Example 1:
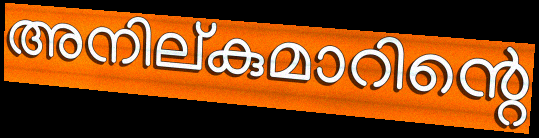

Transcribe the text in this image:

അനില്കുമാറിന്റെ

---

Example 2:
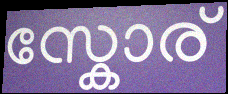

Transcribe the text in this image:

സ്കോര്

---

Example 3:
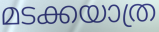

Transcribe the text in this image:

മടക്കയാത്ര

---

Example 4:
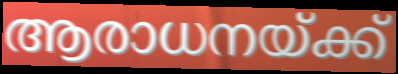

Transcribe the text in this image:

ആരാധനയ്ക്ക്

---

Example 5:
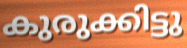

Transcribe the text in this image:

കുരുക്കിട്ടു